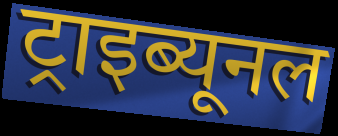
ट्राइब्यूनल